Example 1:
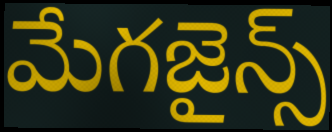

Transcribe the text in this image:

మేగజైన్స్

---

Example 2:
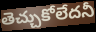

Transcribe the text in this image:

తెచ్చుకోలేదనీ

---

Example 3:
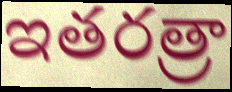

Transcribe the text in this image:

ఇతరత్రా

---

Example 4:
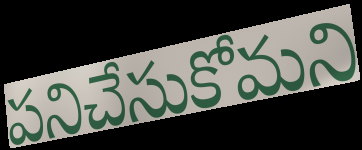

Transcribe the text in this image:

పనిచేసుకోమని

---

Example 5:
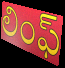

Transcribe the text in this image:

లింఫ్